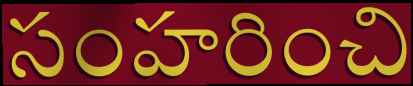
సంహరించి